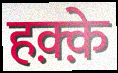
हक़्क़े